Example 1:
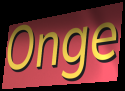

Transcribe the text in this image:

Onge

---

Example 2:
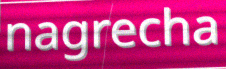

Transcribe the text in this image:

nagrecha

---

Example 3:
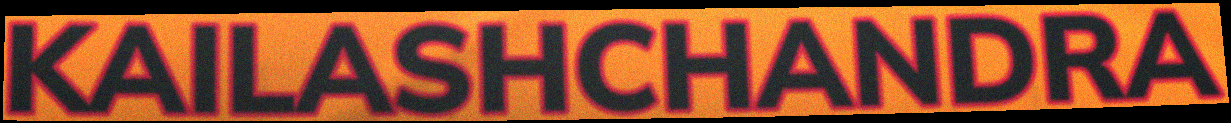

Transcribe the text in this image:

KAILASHCHANDRA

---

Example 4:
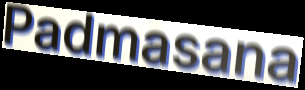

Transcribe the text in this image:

Padmasana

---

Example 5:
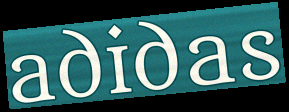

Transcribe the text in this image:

adidas